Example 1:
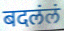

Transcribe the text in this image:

बदलंलं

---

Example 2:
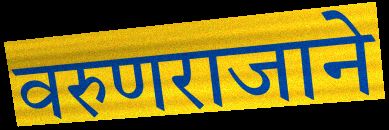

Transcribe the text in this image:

वरुणराजाने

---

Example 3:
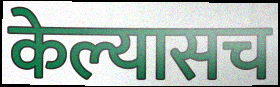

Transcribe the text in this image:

केल्यासच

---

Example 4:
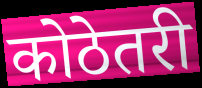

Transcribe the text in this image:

कोठेतरी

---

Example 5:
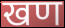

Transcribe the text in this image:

खण